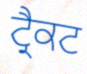
ਟ੍ਰੈਕਟ